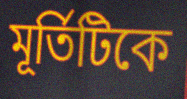
মূর্তিটিকে